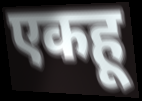
एकहू